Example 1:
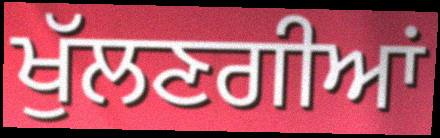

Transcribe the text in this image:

ਖੁੱਲਣਗੀਆਂ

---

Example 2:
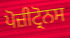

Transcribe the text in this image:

ਪੋਜ਼ੀਟ੍ਰੋਨਸ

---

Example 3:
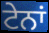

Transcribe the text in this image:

ਟੇਨਾਂ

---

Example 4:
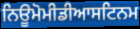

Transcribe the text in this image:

ਨਿਊਮੋਮੀਡੀਆਸਟਿਨਮ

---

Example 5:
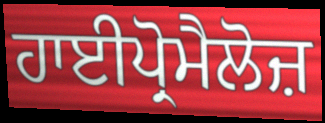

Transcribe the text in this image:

ਹਾਈਪ੍ਰੋਮੈਲੋਜ਼